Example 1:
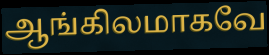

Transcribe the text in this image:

ஆங்கிலமாகவே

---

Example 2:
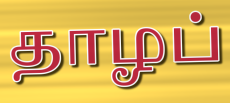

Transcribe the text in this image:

தாழப்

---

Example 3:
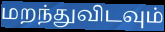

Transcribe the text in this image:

மறந்துவிடவும்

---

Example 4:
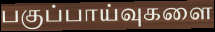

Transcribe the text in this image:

பகுப்பாய்வுகளை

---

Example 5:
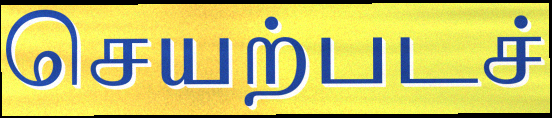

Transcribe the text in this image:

செயற்படச்